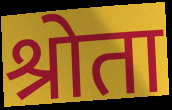
श्रोता